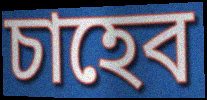
চাহেব